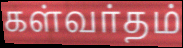
கள்வர்தம்